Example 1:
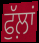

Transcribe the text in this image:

ਫੁੱਲ਼ਾਂ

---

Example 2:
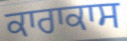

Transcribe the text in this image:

ਕਾਰਾਕਾਸ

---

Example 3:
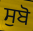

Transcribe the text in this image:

ਸੁਬੋ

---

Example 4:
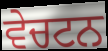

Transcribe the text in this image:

ਵੇਚਟਨ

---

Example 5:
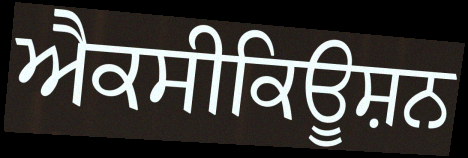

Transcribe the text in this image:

ਐਕਸੀਕਿਊਸ਼ਨ